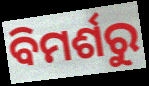
ବିମର୍ଶରୁ